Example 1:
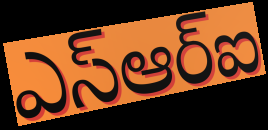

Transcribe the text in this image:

ఎస్ఆర్ఐ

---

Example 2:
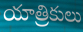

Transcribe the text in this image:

యాత్రికులు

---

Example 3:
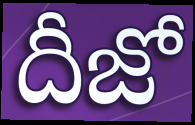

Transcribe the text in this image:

దీజో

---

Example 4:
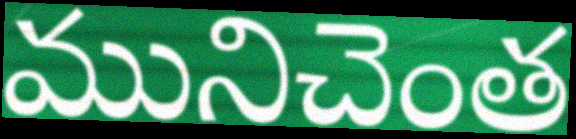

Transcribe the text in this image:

మునిచెంత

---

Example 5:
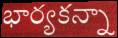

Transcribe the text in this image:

భార్యకన్నా